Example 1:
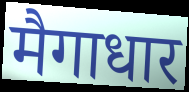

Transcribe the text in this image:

मैगाधार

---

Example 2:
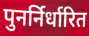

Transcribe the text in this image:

पुनर्निर्धारित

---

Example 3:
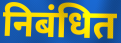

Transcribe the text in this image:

निबंधित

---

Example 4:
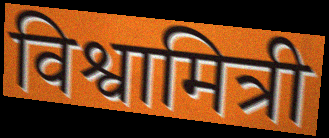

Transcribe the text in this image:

विश्वामित्री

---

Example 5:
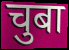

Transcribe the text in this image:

चुबा